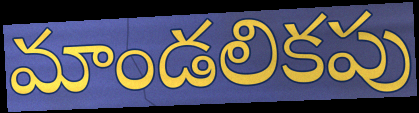
మాండలికపు